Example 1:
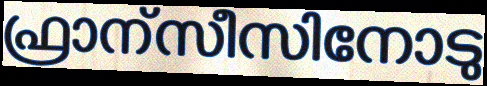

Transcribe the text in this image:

ഫ്രാന്സീസിനോടു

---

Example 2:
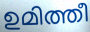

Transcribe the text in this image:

ഉമിത്തീ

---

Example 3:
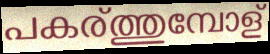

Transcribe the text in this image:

പകര്ത്തുമ്പോള്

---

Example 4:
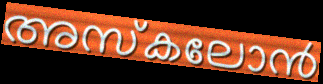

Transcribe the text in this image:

അസ്കലോൻ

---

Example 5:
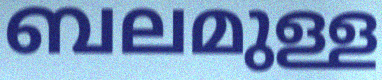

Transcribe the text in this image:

ബലമുള്ള